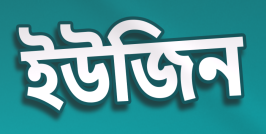
ইউজিন